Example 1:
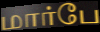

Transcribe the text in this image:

மார்பே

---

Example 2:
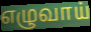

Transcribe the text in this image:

எழுவாய்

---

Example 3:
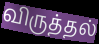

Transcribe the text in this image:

விருத்தல்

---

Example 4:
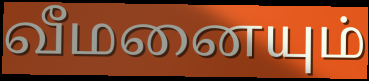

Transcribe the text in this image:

வீமனையும்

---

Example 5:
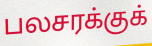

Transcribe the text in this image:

பலசரக்குக்